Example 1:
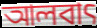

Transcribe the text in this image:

আলবাৎ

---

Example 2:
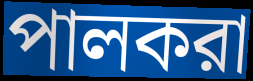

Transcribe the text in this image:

পালকরা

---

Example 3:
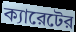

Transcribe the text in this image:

ক্যারেটের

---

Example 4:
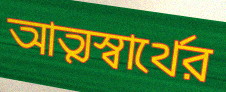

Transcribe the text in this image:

আত্মস্বার্থের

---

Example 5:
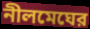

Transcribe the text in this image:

নীলমেঘের